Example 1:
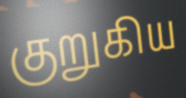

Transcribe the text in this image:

குறுகிய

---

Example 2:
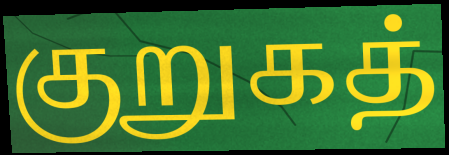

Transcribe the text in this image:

குறுகத்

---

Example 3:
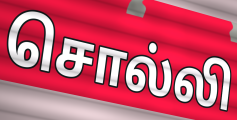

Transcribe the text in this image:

சொல்லி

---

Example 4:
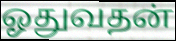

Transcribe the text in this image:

ஓதுவதன்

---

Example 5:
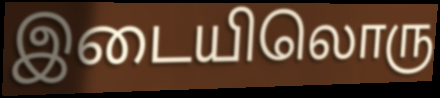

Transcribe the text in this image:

இடையிலொரு